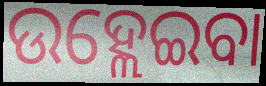
ଉହ୍ଲେଇବା